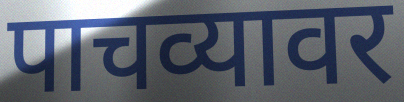
पाचव्यावर